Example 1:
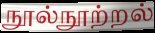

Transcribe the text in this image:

நூல்நூற்றல்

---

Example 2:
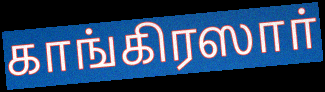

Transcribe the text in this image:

காங்கிரஸார்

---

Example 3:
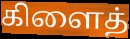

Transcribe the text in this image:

கிளைத்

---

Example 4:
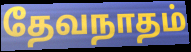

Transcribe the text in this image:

தேவநாதம்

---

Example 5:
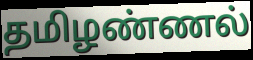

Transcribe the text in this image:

தமிழண்ணல்